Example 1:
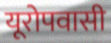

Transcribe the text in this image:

यूरोपवासी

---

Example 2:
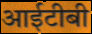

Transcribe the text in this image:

आईटीबी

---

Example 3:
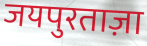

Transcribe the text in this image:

जयपुरताज़ा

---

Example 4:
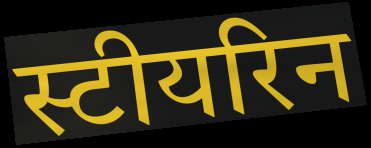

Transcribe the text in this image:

स्टीयरिन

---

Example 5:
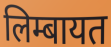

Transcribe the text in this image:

लिम्बायत